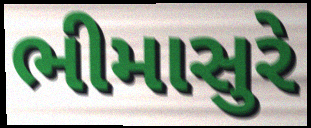
ભીમાસુરે